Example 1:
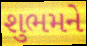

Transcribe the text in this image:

શુભમને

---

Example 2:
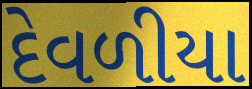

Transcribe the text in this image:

દેવળીયા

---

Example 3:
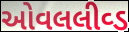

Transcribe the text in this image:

ઓવલલીવ્ડ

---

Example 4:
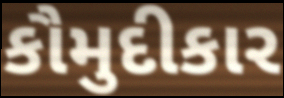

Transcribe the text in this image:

કૌમુદીકાર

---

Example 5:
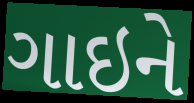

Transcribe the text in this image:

ગાઇને